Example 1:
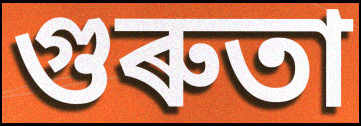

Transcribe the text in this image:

গুৰুতা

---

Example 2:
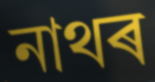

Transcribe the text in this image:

নাথৰ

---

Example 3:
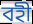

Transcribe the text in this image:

বহী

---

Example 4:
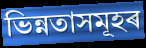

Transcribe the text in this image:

ভিন্নতাসমূহৰ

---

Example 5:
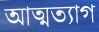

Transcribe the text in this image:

আত্মত্যাগ